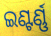
ଇଣ୍ଟର୍ଣ୍ଣ